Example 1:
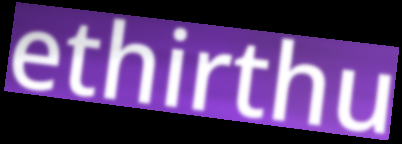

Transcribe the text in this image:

ethirthu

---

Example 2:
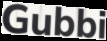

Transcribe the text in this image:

Gubbi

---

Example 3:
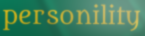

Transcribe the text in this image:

personility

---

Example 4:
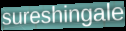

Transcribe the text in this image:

sureshingale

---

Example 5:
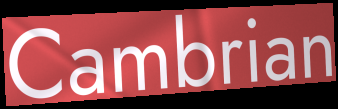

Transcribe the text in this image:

Cambrian